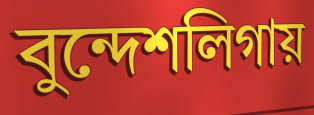
বুন্দেশলিগায়